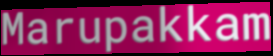
Marupakkam